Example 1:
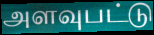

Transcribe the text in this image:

அளவுபட்டு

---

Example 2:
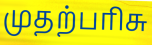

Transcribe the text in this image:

முதற்பரிசு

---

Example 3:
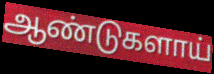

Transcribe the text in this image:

ஆண்டுகளாய்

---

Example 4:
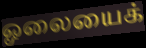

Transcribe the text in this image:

ஓலையைக்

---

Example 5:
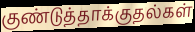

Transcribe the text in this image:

குண்டுத்தாக்குதல்கள்